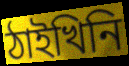
ঠাইখিনি